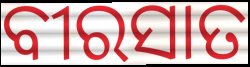
ବୀରସାତ